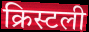
क्रिस्टली